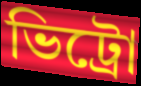
ভিট্রো